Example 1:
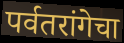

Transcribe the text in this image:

पर्वतरांगेचा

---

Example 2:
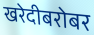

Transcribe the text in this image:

खरेदीबरोबर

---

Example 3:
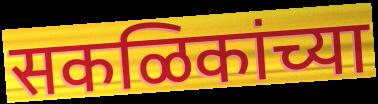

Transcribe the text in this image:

सकळिकांच्या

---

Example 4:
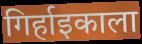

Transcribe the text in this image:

गिर्हाइकाला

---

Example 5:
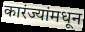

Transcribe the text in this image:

कारंज्यांमधून